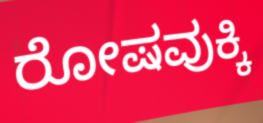
ರೋಷವುಕ್ಕಿ